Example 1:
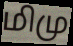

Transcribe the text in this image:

மிமு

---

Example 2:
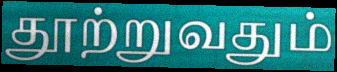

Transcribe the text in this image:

தூற்றுவதும்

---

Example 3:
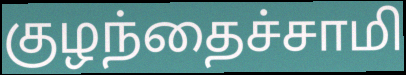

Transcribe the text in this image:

குழந்தைச்சாமி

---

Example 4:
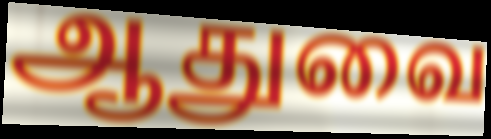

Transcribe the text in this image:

ஆதுவை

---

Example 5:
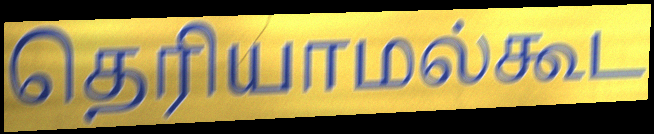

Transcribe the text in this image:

தெரியாமல்கூட